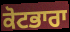
ਕੋਟਭਾਰਾ